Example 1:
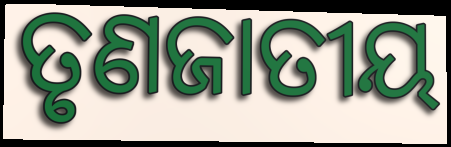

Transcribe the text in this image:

ତୃଣଜାତୀୟ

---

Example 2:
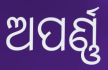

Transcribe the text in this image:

ଅପର୍ଣ୍ଣ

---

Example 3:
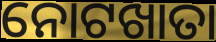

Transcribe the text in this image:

ନୋଟଖାତା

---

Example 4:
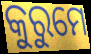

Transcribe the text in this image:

କୁରୁମେ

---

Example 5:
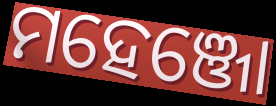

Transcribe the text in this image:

ମହେଞ୍ଜୋ